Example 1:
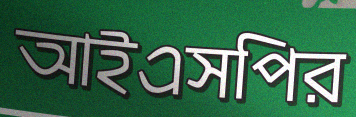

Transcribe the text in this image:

আইএসপির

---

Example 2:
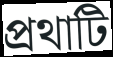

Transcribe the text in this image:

প্রথাটি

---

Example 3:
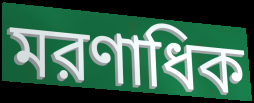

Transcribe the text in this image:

মরণাধিক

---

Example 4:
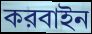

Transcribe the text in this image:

করবাইন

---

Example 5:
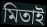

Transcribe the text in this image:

মিতাই